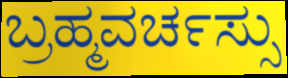
ಬ್ರಹ್ಮವರ್ಚಸ್ಸು